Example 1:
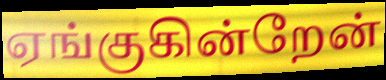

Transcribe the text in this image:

ஏங்குகின்றேன்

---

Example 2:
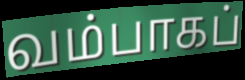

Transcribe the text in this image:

வம்பாகப்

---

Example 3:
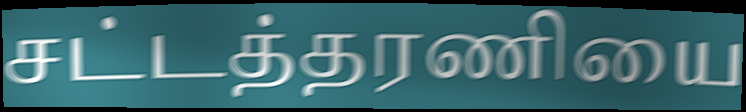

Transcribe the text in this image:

சட்டத்தரணியை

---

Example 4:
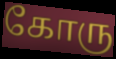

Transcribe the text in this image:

கோரு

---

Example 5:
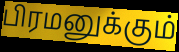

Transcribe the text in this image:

பிரமனுக்கும்